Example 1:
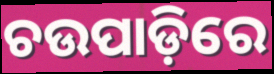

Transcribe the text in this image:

ଚଉପାଡ଼ିରେ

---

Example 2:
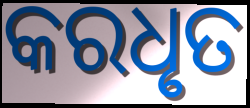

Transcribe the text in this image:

କରଧୃତ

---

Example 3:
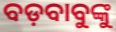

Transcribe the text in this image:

ବଡ଼ବାବୁଙ୍କୁ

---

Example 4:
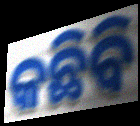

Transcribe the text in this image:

କଛିବି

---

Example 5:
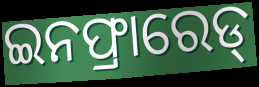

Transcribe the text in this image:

ଇନଫ୍ରାରେଡ୍